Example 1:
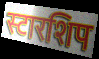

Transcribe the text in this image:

स्टारशिप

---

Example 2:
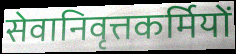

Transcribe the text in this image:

सेवानिवृत्तकर्मियों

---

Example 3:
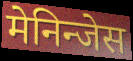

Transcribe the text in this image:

मेनिन्जेस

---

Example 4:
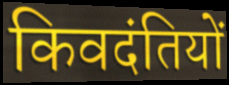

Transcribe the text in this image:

किवदंतियों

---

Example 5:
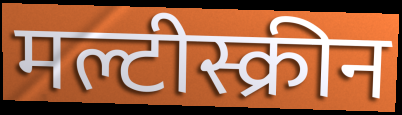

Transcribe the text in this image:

मल्टीस्क्रीन